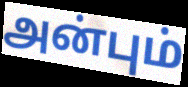
அன்பும்